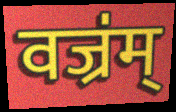
वज्र॑म्